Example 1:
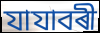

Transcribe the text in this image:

যাযাবৰী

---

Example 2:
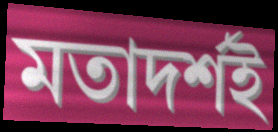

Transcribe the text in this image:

মতাদৰ্শই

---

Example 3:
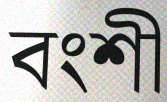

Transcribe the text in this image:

বংশী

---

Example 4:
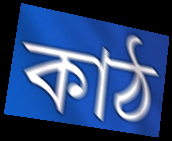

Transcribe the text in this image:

কাঠ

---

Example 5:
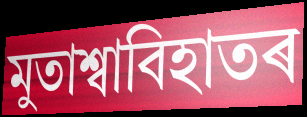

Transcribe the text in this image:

মুতাশ্বাবিহাতৰ